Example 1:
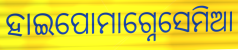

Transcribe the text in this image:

ହାଇପୋମାଗ୍ନେସେମିଆ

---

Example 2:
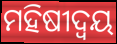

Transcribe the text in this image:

ମହିଷୀଦ୍ୱୟ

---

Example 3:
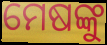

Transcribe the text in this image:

ମେଷଙ୍କୁ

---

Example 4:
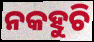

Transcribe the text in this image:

ନକହୁଚି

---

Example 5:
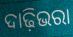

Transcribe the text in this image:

ଦାଢ଼ିଭରା